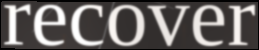
recover